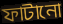
ফাটানো